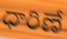
ధారిణే